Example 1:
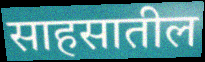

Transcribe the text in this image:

साहसातील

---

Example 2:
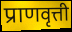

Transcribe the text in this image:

प्राणवृत्ती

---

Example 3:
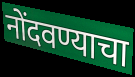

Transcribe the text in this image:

नोंदवण्याचा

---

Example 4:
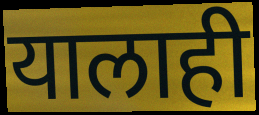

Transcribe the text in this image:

यालाही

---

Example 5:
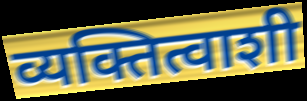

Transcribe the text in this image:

व्यक्तित्वाशी